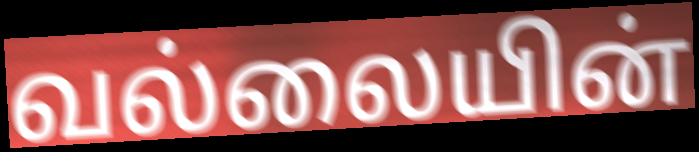
வல்லையின்